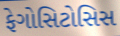
ફેગોસિટોસિસ